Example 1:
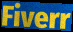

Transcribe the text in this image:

Fiverr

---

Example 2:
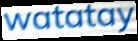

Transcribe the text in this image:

watatay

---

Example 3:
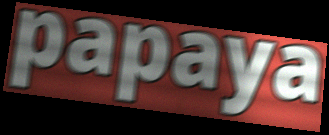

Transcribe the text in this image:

papaya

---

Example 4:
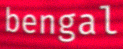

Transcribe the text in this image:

bengal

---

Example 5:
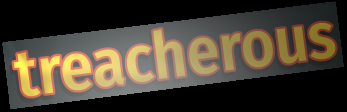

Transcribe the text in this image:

treacherous